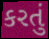
કરતું